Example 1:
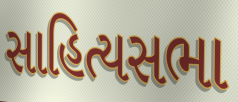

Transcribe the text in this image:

સાહિત્યસભા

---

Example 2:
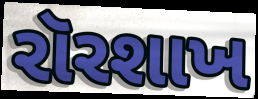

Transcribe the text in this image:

રૉરશાખ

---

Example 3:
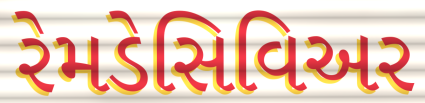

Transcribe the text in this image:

રેમડેસિવિઅર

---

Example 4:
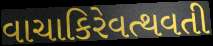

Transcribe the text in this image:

વાચાકિરેવત્થવતી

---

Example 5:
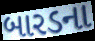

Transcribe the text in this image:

બારડના